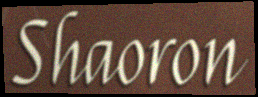
Shaoron